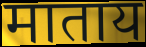
माताय